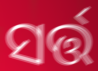
ସର୍ତ୍ତ